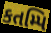
કતમ્પિ